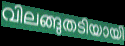
വിലങ്ങുതടിയായി